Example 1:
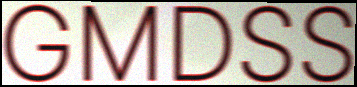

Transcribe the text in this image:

GMDSS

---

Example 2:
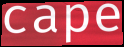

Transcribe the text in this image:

cape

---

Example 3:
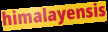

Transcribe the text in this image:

himalayensis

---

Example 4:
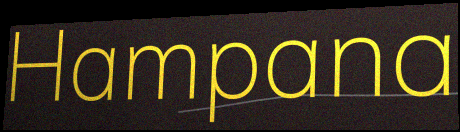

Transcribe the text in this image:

Hampana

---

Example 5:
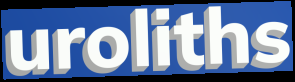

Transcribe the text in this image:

uroliths